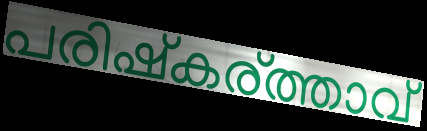
പരിഷ്കര്ത്താവ്